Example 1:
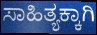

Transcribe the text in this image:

ಸಾಹಿತ್ಯಕ್ಕಾಗಿ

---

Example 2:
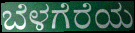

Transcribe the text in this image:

ಬೆಳಗೆರೆಯ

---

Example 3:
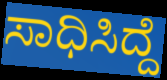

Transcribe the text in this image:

ಸಾಧಿಸಿದ್ದೆ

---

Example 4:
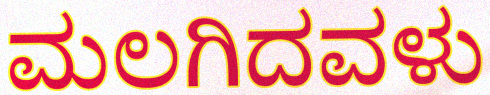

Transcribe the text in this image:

ಮಲಗಿದವಳು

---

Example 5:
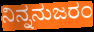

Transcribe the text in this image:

ನಿನ್ನನುಜರಂ